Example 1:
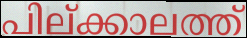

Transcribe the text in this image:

പില്ക്കാലത്ത്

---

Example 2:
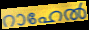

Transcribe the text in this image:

റാഹേൽ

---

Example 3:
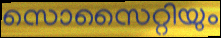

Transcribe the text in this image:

സൊസൈറ്റിയും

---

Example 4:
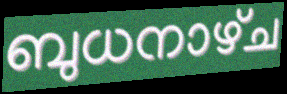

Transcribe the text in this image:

ബുധനാഴ്‌ച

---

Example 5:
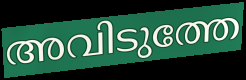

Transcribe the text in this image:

അവിടുത്തേ